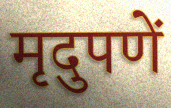
मृदुपणें